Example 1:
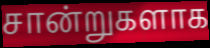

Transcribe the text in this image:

சான்றுகளாக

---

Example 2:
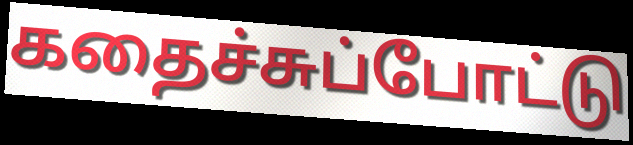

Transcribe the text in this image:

கதைச்சுப்போட்டு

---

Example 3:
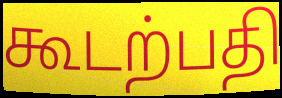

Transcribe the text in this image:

கூடற்பதி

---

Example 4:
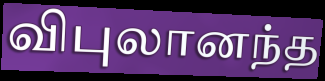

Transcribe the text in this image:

விபுலானந்த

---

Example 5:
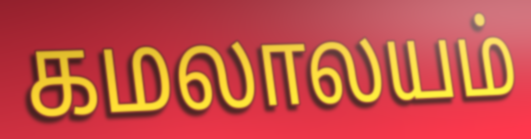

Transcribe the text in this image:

கமலாலயம்